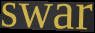
swar